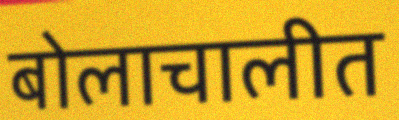
बोलाचालीत